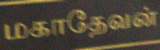
மகாதேவன்